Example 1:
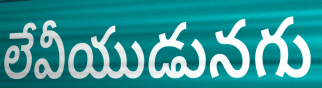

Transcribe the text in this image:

లేవీయుడునగు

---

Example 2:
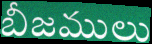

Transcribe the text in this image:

బీజములు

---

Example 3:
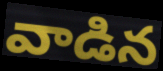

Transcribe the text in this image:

వాడిన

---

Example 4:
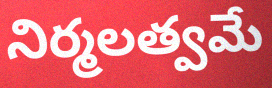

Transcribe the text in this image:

నిర్మలత్వమే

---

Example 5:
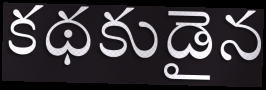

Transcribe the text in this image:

కథకుడైన